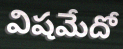
విషమేదో